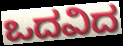
ಒದವಿದ